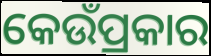
କେଉଁପ୍ରକାର